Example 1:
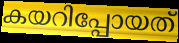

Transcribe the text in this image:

കയറിപ്പോയത്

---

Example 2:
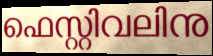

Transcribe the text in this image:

ഫെസ്റ്റിവലിനു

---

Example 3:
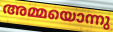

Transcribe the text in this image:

അമ്മയൊന്നു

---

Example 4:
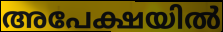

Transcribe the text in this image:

അപേക്ഷയിൽ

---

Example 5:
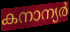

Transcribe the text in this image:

കനാന്യർ